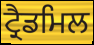
ਟ੍ਰੈਡਮਿਲ